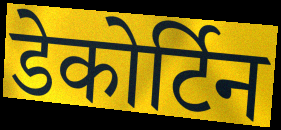
डेकोर्टिन